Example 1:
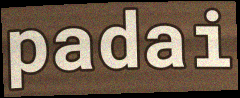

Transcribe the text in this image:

padai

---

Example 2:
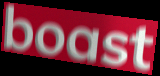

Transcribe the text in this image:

boast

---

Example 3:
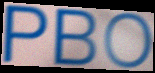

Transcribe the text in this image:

PBO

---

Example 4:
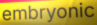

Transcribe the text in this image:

embryonic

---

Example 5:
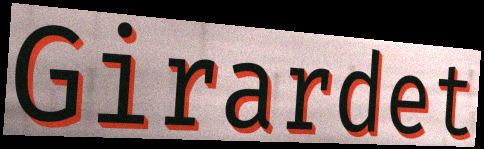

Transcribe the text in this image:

Girardet